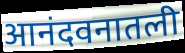
आनंदवनातली